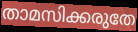
താമസിക്കരുതേ